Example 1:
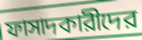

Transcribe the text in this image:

ফাসাদকারীদের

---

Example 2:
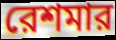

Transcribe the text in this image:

রেশমার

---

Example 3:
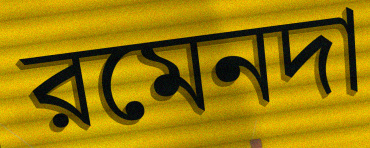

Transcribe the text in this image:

রমেনদা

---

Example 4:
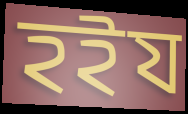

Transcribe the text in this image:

হইয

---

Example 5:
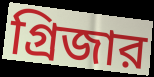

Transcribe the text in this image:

গ্রিজার